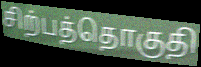
சிற்பத்தொகுதி